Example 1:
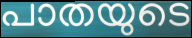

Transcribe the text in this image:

പാതയുടെ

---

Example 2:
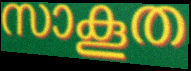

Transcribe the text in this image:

സാകൂത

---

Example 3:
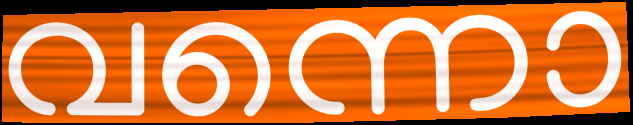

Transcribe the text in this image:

വന്നൊ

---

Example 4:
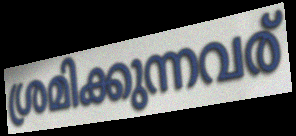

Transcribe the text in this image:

ശ്രമിക്കുന്നവര്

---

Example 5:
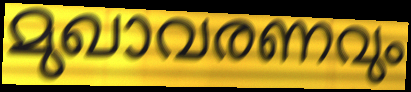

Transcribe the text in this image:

മുഖാവരണവും